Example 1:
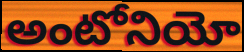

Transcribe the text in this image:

అంటోనియో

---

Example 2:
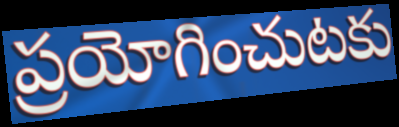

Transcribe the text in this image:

ప్రయోగించుటకు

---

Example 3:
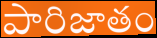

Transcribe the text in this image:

పారిజాతం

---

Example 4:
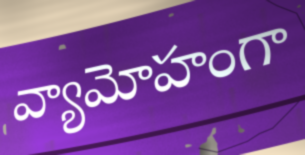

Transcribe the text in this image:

వ్యామోహంగా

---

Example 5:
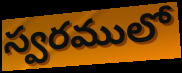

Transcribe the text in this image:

స్వరములో